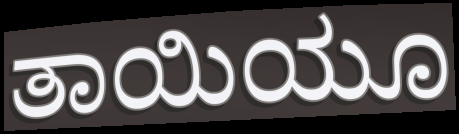
ತಾಯಿಯೂ